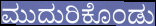
ಮುದುರಿಕೊಂಡು